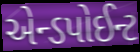
એન્ડપોઈન્ટ